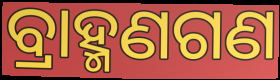
ବ୍ରାହ୍ମଣଗଣ